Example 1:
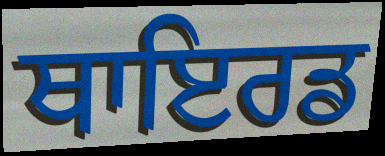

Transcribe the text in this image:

ਥਾਇਰਡ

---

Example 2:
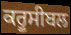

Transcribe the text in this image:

ਕਰੂਸੀਬਲ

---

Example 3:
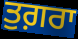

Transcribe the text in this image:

ਤੁਗ਼ਰਾ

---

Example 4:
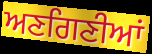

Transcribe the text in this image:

ਅਣਗਿਣੀਆਂ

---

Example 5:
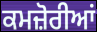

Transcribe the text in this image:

ਕਮਜ਼ੋਰੀਆਂ